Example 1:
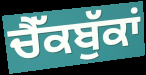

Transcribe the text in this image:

ਚੈੱਕਬੁੱਕਾਂ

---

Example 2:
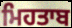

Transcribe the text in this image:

ਮਿਹਤਾਬ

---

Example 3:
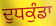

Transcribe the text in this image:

ਦੁਧਕੁੰਡਾ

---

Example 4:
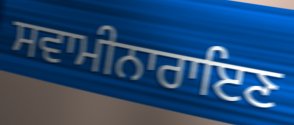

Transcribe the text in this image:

ਸਵਾਮੀਨਾਰਾਇਣ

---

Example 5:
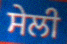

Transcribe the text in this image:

ਸੇਲੀ